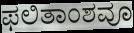
ಫಲಿತಾಂಶವೂ